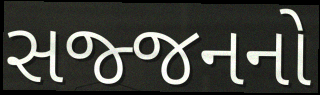
સજ્જનનો